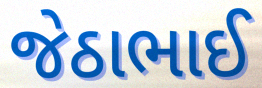
જેઠાભાઈ